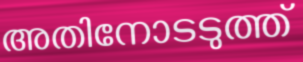
അതിനോടടുത്ത്